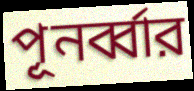
পূনর্ব্বার